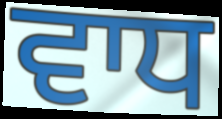
ਵਾਧ